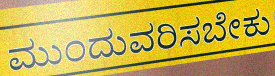
ಮುಂದುವರಿಸಬೇಕು